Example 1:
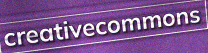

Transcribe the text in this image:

creativecommons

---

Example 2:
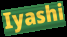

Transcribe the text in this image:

Iyashi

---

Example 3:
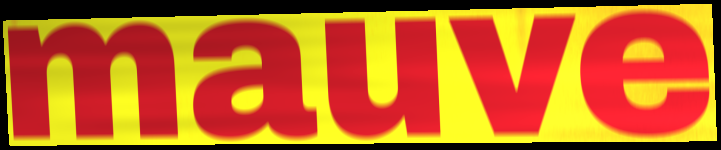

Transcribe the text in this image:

mauve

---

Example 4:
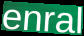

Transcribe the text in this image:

enral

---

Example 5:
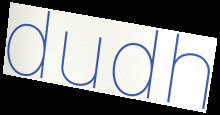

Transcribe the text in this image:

dudh